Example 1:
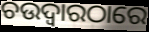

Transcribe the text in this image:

ଚଉଦ୍ଵାରଠାରେ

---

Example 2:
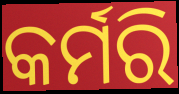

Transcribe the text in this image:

କର୍ମରି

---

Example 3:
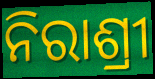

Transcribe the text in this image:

ନିରାଶ୍ରୀ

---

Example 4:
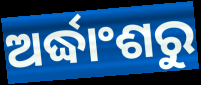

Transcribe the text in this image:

ଅର୍ଦ୍ଧାଂଶରୁ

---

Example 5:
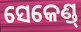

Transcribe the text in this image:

ସେକେଣ୍ଡ୍